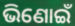
ଭିଣୋଇଁ